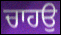
ਚਾਹਉ